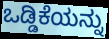
ಒಡ್ಡಿಕೆಯನ್ನು